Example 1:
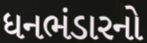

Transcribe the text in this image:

ધનભંડારનો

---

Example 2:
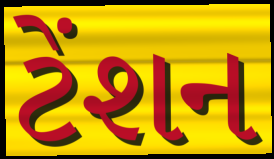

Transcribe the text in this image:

ટેંશન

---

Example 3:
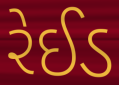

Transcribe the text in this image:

રેઈડ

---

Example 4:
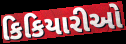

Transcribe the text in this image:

કિકિયારીઓ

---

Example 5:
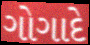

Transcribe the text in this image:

ગોગાદે